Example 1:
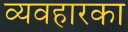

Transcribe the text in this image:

व्यवहारका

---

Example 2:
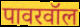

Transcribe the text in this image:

पावरवॉल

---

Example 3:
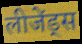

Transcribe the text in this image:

लीजेंड्स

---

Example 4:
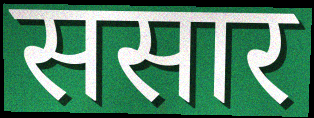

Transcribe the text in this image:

ससार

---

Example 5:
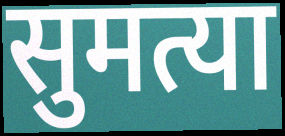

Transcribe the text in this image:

सुमत्या